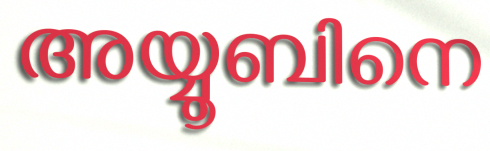
അയ്യൂബിനെ